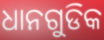
ଧାନଗୁଡିକ